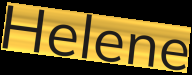
Helene